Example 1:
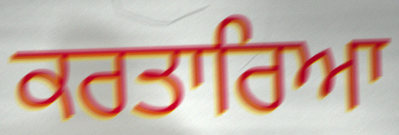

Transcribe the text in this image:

ਕਰਤਾਰਿਆ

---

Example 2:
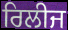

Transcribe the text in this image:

ਰਿਲੀਜ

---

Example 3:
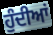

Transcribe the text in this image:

ਹੁੰਦੀਆਂ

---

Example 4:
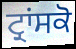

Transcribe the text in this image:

ਟ੍ਰਾਂਸਕੋ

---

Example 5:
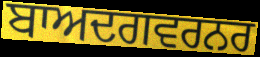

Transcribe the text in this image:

ਬਾਅਦਗਵਰਨਰ